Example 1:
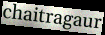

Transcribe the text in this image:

chaitragaur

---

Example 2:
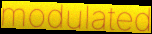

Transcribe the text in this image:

modulated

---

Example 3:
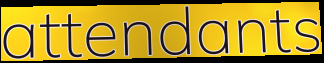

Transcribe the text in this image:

attendants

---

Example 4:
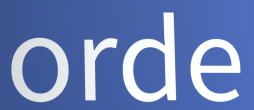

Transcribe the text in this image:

orde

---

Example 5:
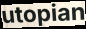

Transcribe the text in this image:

utopian